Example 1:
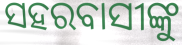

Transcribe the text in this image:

ସହରବାସୀଙ୍କୁ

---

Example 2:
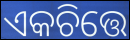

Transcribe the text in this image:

ଏକଚିତ୍ତେ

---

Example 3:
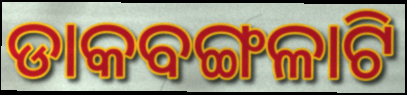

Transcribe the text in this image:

ଡାକବଙ୍ଗଳାଟି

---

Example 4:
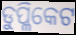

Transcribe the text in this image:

ଡୁପ୍ଳିକେଟ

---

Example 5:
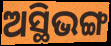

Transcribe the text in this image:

ଅସ୍ଥିଭଙ୍ଗ